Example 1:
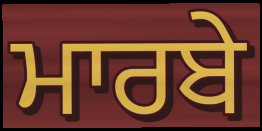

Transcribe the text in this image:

ਮਾਰਬੇ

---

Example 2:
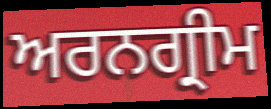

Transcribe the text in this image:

ਅਰਨਗ੍ਰੀਮ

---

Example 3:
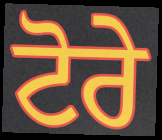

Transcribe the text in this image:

ਟੋਰੇ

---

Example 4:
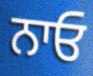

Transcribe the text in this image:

ਨਾਓ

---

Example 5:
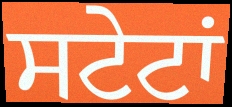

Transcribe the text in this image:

ਸਟੇਟਾਂ